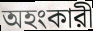
অহংকারী